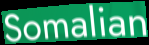
Somalian